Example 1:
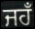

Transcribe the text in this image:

ਜਹਁ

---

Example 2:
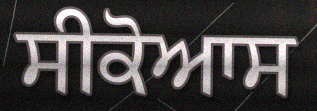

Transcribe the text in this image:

ਸੀਕੋਆਸ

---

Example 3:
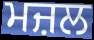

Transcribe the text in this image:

ਮਜ਼ਲ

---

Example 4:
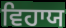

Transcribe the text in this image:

ਵਿਹਾਯ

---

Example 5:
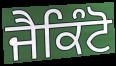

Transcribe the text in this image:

ਜੈਕਿੰਟੋ